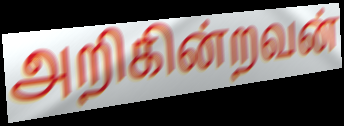
அறிகின்றவன்